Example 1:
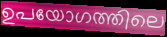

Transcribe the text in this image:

ഉപയോഗത്തിലെ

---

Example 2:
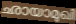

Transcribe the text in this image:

ഛായാമുഖി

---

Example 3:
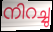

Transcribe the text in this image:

നിറച്ചു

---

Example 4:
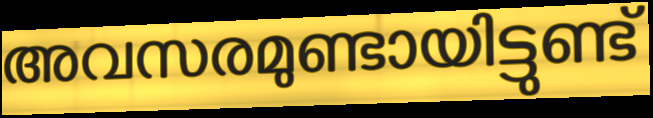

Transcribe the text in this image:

അവസരമുണ്ടായിട്ടുണ്ട്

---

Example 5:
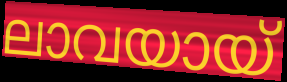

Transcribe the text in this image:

ലാവയായ്